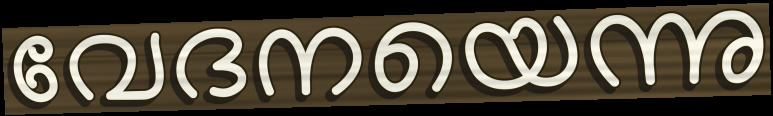
വേദനയെന്നു